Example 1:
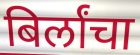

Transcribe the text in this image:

बिर्लांचा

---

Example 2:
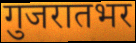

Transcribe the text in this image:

गुजरातभर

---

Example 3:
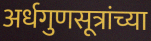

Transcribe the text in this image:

अर्धगुणसूत्रांच्या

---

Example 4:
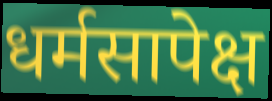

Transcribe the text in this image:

धर्मसापेक्ष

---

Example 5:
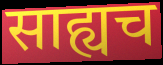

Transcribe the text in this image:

साह्यच